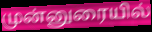
முன்னுரையில்